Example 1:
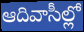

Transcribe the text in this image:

ఆదివాసీల్లో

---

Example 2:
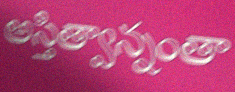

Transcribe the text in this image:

అస్తిత్వాన్నంతా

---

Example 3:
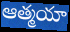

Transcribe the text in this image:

ఆత్మయా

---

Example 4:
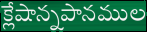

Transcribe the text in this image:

క్లేషాన్నపానముల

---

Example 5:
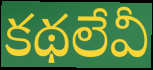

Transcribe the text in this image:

కథలేవీ